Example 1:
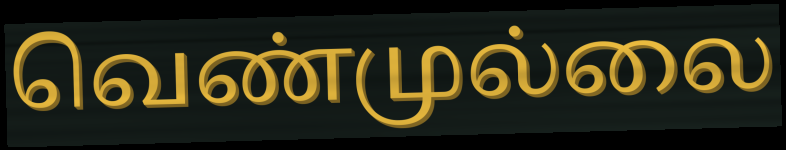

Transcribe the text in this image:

வெண்முல்லை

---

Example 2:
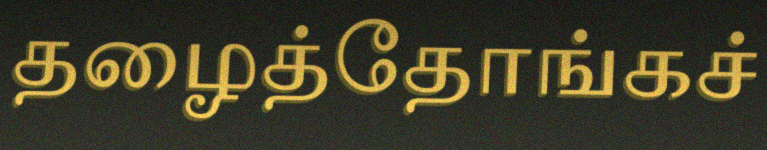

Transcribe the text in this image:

தழைத்தோங்கச்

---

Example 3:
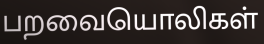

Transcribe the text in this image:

பறவையொலிகள்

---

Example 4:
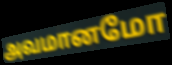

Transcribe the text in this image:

அவமானமோ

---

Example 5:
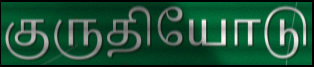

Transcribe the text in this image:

குருதியோடு